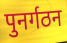
पुनर्गठन